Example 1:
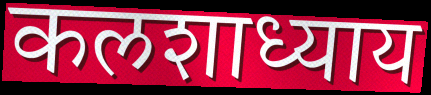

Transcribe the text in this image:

कलशाध्याय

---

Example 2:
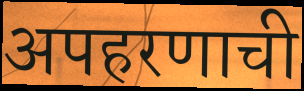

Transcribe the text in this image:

अपहरणाची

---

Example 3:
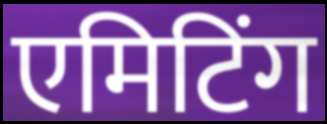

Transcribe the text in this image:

एमिटिंग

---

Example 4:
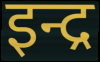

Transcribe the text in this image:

इन्द्र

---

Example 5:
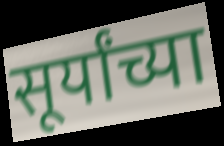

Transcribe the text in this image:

सूर्यांच्या